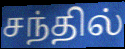
சந்தில்